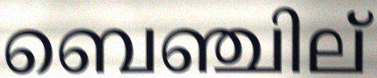
ബെഞ്ചില്